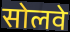
सोलवे